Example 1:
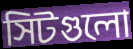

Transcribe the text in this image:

সিটগুলো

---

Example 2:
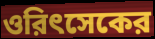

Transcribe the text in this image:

ওরিৎসেকের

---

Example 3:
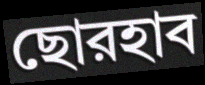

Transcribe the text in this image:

ছোরহাব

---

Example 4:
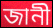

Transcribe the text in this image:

জানী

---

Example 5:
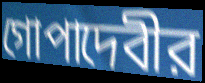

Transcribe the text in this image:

গোপাদেবীর